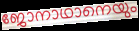
ജോനാഥാനെയും